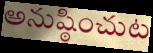
అనుష్ఠించుట